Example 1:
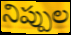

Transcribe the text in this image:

నిప్పుల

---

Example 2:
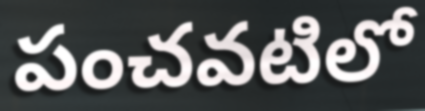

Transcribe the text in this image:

పంచవటిలో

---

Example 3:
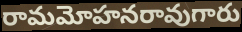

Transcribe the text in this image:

రామమోహనరావుగారు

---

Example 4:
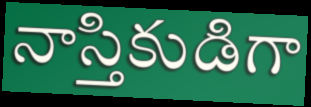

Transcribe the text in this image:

నాస్తికుడిగా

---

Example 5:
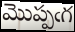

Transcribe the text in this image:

మొప్పఁగ